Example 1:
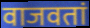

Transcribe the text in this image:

वाजवतां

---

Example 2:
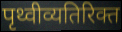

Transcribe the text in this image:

पृथ्वीव्यतिरिक्त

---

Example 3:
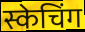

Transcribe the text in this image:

स्केचिंग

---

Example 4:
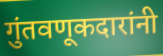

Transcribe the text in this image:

गुंतवणूकदारांनी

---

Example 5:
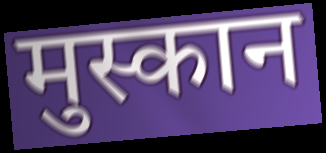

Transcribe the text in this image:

मुस्कान